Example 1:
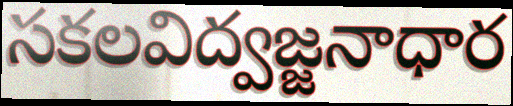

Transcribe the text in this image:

సకలవిద్వజ్జనాధార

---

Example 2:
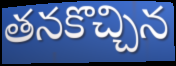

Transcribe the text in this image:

తనకొచ్చిన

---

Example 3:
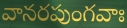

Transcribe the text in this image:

వానరపుంగవాః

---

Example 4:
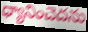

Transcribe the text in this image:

ధ్యానించెదను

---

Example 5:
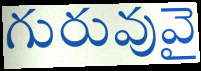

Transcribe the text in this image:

గురువువై